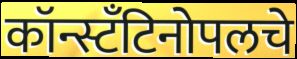
कॉन्स्टँटिनोपलचे